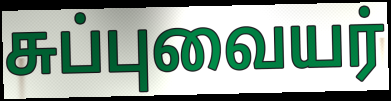
சுப்புவையர்